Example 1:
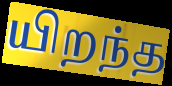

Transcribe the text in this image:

யிறந்த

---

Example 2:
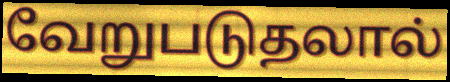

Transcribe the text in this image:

வேறுபடுதலால்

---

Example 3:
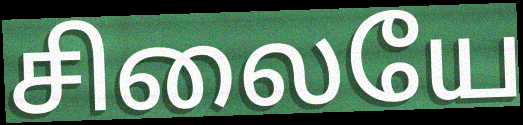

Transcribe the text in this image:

சிலையே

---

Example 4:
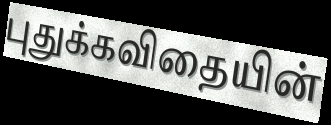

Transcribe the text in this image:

புதுக்கவிதையின்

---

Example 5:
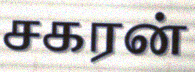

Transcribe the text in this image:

சகரன்